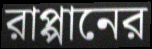
রাপ্পানের